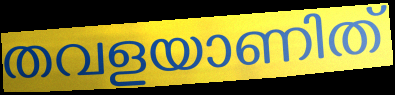
തവളയാണിത്